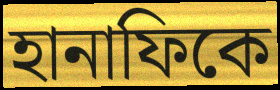
হানাফিকে